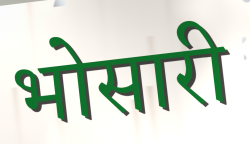
भोसारी